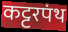
कट्टरपंथ